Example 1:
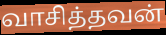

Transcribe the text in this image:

வாசித்தவன்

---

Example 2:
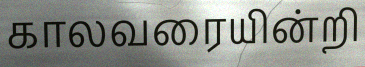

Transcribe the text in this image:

காலவரையின்றி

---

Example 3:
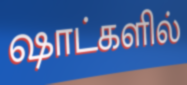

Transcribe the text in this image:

ஷாட்களில்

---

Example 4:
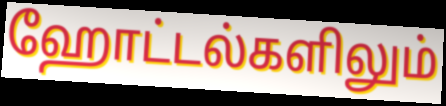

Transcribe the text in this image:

ஹோட்டல்களிலும்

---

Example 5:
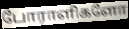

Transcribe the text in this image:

போராளிகளோ